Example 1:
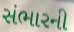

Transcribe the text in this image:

સંભારની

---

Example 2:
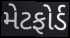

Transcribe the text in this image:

મેટફોર્ડ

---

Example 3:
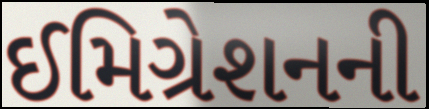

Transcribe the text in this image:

ઈમિગ્રેશનની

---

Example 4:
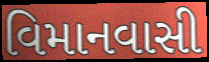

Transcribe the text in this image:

વિમાનવાસી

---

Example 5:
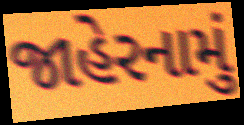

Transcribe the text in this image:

જાહેરનામું